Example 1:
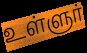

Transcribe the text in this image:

உள்ளுர்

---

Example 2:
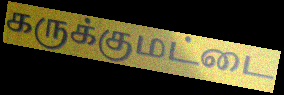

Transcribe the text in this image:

கருக்குமட்டை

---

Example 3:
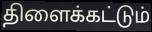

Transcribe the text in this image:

திளைக்கட்டும்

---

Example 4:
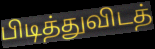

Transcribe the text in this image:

பிடித்துவிடத்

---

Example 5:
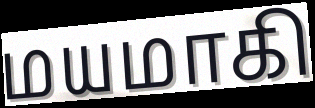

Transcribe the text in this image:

மயமாகி